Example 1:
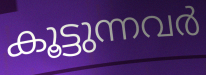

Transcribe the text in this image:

കൂട്ടുന്നവർ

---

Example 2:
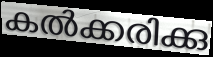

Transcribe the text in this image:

കൽക്കരിക്കു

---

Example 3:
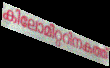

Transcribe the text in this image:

കിലോമീറ്ററിനകത്ത്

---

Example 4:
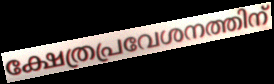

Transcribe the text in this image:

ക്ഷേത്രപ്രവേശനത്തിന്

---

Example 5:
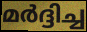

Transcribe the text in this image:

മർദ്ദിച്ച